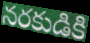
నరకుడికి